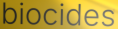
biocides